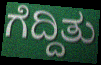
ಗೆದ್ದಿತು